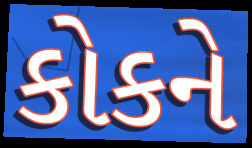
કોકને